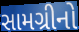
સામગ્રીનો